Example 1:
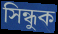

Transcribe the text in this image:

সিন্ধুক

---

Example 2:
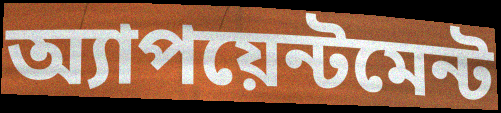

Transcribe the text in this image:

অ্যাপয়েন্টমেন্ট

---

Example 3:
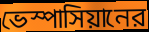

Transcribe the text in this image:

ভেস্পাসিয়ানের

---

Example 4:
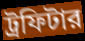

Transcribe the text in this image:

ট্রফিটার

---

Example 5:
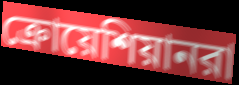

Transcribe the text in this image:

ক্রোয়েশিয়ানরা